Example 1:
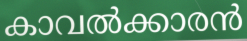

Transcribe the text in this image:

കാവൽക്കാരൻ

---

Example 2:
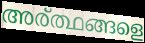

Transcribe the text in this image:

അര്ത്ഥങ്ങളെ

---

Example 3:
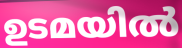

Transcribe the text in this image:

ഉടമയിൽ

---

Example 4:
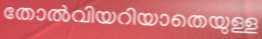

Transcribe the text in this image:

തോൽവിയറിയാതെയുള്ള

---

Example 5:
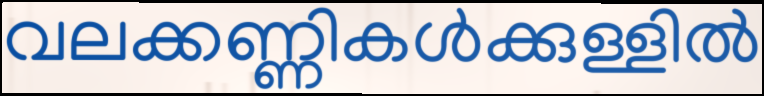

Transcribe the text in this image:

വലക്കണ്ണികൾക്കുള്ളിൽ